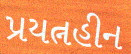
પ્રયત્નહીન